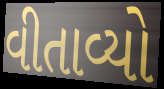
વીતાવ્યો